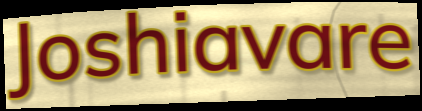
Joshiavare